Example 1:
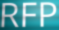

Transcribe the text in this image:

RFP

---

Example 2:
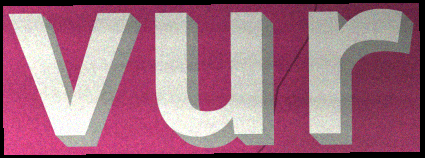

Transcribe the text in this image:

vur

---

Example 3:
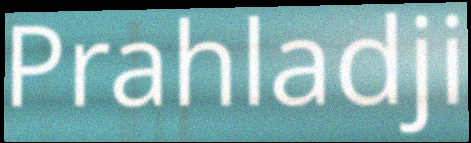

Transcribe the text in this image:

Prahladji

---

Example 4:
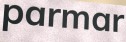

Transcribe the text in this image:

parmar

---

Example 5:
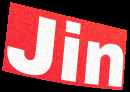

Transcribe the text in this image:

Jin